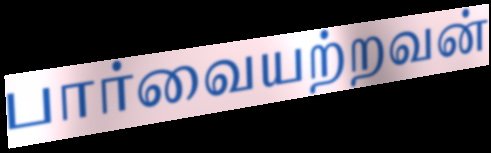
பார்வையற்றவன்